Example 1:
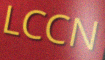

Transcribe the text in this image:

LCCN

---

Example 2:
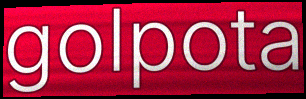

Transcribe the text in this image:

golpota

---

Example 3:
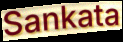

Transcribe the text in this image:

Sankata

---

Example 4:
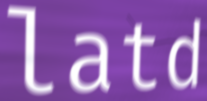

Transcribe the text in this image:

latd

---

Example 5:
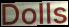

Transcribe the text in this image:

Dolls